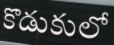
కొడుకులో